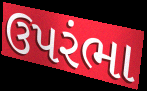
ઉપરંભા